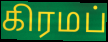
கிரமப்